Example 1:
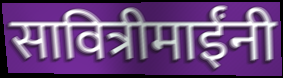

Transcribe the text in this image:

सावित्रीमाईंनी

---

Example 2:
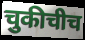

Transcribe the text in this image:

चुकीचीच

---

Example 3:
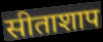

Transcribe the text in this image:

सीताशाप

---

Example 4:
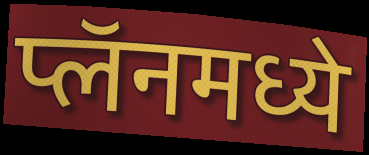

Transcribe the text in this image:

प्लॅनमध्ये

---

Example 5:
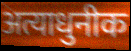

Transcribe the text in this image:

अत्याधुनीक